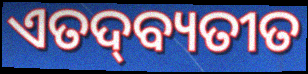
ଏତଦ୍‌ବ୍ୟତୀତ